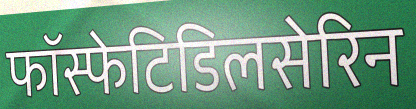
फॉस्फेटिडिलसेरिन